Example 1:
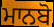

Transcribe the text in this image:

ਮਾਨਬੋ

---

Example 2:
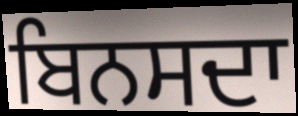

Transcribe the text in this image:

ਬਿਨਸਦਾ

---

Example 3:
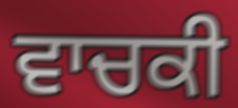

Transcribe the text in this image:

ਵਾਚਕੀ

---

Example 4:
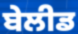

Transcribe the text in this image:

ਬੇਲੀਡ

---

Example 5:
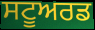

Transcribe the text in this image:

ਸਟੂਅਰਡ